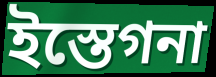
ইস্তেগনা